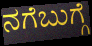
ನಗೆಬುಗ್ಗೆ